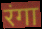
रंगा